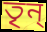
তৃন্